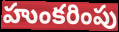
హుంకరింపు